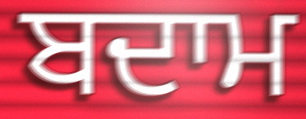
ਬਦਾਮ